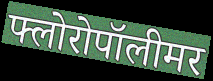
फ्लोरोपॉलीमर